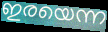
ഇരയെന്ന